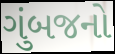
ગુંબજનો